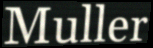
Muller